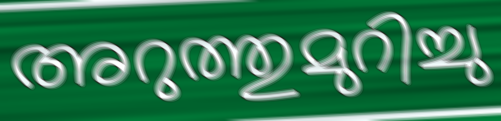
അറുത്തുമുറിച്ചു